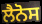
ਲੈਨੋਸ